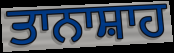
ਤਾਨਾਸ਼ਾਹ